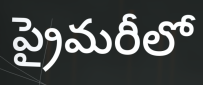
ప్రైమరీలో